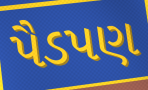
પૈડપણ